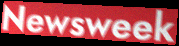
Newsweek